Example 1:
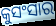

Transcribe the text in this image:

କୁସଂସାର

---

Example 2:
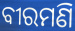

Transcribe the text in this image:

ବୀରମଣି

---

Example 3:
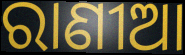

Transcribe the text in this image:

ରାଣୀଆ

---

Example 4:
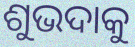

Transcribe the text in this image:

ଶୁଭଦାକୁ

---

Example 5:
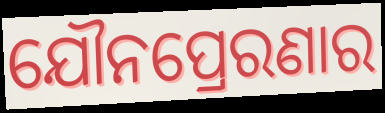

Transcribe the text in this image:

ଯୌନପ୍ରେରଣାର